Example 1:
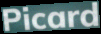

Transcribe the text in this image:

Picard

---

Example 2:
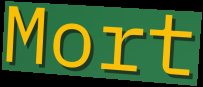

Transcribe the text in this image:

Mort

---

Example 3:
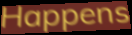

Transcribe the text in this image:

Happens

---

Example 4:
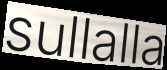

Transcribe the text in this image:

sullalla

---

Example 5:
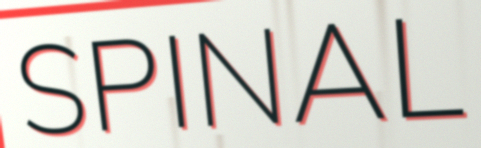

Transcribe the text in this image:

SPINAL